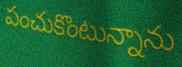
పంచుకొంటున్నాను